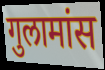
गुलामांस